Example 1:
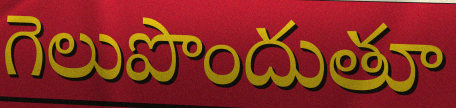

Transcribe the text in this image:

గెలుపొందుతూ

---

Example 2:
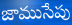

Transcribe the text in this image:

జాముసేపు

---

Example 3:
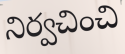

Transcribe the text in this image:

నిర్వచించి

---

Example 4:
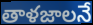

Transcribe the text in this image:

తాళజాలనే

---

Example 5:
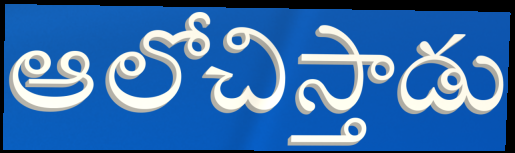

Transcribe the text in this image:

ఆలోచిస్తాడు